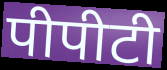
पीपीटी